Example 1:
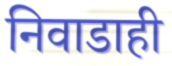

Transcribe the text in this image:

निवाडाही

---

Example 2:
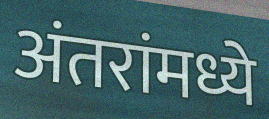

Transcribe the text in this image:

अंतरांमध्ये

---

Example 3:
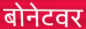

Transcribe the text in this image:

बोनेटवर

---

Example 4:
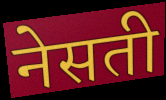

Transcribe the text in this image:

नेसती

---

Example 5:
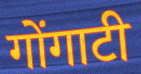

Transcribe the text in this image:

गोंगाटी